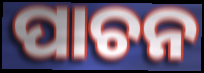
ପାଚନ